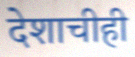
देशाचीही